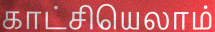
காட்சியெலாம்